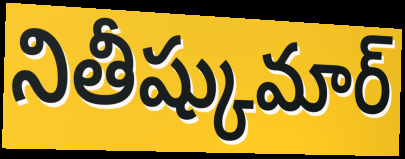
నితీష్కుమార్